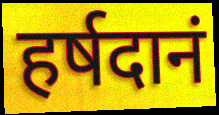
हर्षदानं